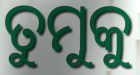
ତୁମୁକୁ